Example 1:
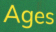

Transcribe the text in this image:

Ages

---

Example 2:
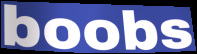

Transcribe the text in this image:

boobs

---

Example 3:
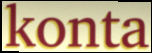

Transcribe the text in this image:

konta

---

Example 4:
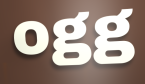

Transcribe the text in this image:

ogg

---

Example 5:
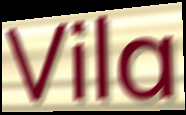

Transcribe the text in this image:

Vila